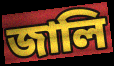
জালি